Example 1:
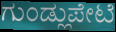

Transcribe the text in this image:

ಗುಂಡ್ಲುಪೇಟೆ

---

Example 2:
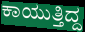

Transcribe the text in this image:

ಕಾಯುತ್ತಿದ್ದ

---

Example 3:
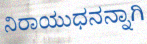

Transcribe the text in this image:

ನಿರಾಯುಧನನ್ನಾಗಿ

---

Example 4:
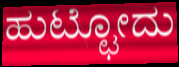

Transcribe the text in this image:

ಹುಟ್ಟೋದು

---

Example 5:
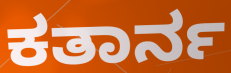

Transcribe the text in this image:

ಕತಾರ್ನ